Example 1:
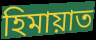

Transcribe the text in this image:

হিমায়াত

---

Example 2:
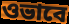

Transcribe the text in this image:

ওভাবে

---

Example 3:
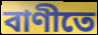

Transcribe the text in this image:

বাণীতে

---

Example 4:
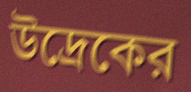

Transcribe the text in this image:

উদ্রেকের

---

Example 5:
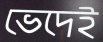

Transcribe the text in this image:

ভেদেই